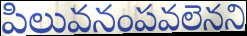
పిలువనంపవలెనని